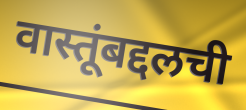
वास्तूंबद्दलची